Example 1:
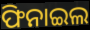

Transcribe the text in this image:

ଫିନାଇଲ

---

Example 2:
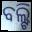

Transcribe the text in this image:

ବଲ୍ଟି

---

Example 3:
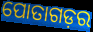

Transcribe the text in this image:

ପୋତାଗଡ଼ର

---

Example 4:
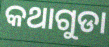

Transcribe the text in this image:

କଥାଗୁଡା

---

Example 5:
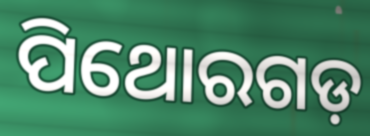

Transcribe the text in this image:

ପିଥୋରଗଡ଼